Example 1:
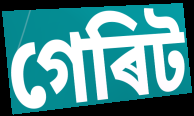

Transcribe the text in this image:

গেৰিট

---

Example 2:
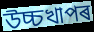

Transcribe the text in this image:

উচ্চখাপৰ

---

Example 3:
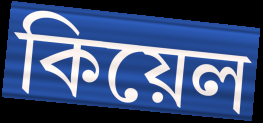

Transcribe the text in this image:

কিয়েল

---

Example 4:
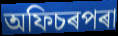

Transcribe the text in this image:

অফিচৰপৰা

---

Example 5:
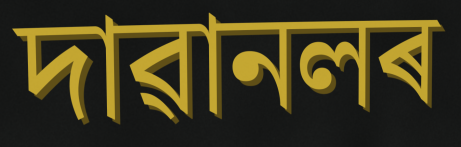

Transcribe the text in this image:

দাৱানলৰ